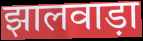
झालवाड़ा